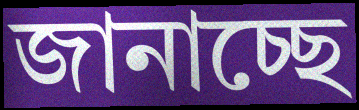
জানাচ্ছে